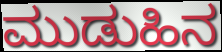
ಮುಡುಹಿನ